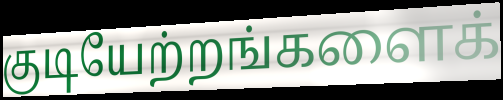
குடியேற்றங்களைக்